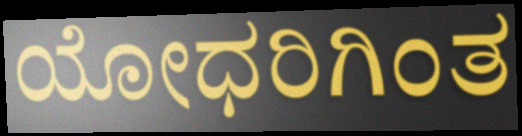
ಯೋಧರಿಗಿಂತ